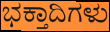
ಭಕ್ತಾದಿಗಳು